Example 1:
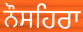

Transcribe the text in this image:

ਨੌਸਹਿਰਾ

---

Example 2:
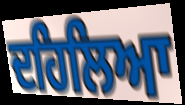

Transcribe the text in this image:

ਦਹਿਲਿਆ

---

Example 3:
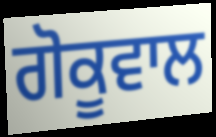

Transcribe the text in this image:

ਗੋਕੂਵਾਲ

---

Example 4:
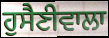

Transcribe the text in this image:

ਹੁਸੈਣੀਵਾਲਾ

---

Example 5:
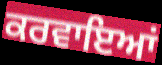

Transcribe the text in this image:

ਕਰਵਾਇਆਂ